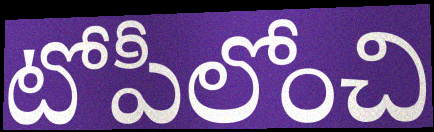
టోపీలోంచి